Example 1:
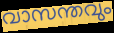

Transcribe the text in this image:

വാസന്തവും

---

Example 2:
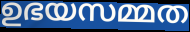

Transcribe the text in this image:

ഉഭയസമ്മത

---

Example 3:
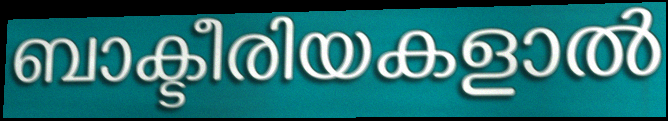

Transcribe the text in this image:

ബാക്ടീരിയകളാൽ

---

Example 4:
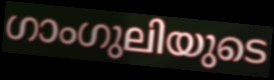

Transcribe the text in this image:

ഗാംഗുലിയുടെ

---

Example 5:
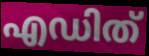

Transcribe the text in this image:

എഡിത്